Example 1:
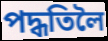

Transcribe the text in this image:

পদ্ধতিলৈ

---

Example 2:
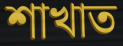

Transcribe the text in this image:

শাখাত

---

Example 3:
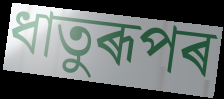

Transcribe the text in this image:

ধাতুৰূপৰ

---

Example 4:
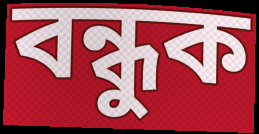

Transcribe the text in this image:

বন্ধুক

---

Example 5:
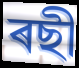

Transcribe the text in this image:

ৰছী